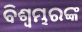
ବିଶ୍ୱମ୍ଭରଙ୍କ